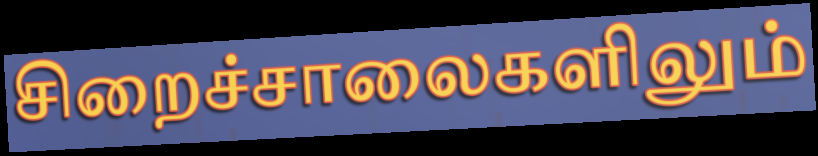
சிறைச்சாலைகளிலும்